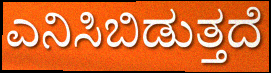
ಎನಿಸಿಬಿಡುತ್ತದೆ